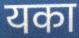
यका